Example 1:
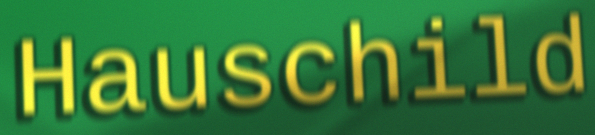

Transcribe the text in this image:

Hauschild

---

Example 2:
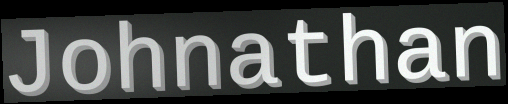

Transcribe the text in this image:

Johnathan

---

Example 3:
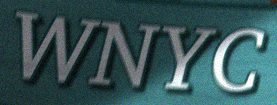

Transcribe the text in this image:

WNYC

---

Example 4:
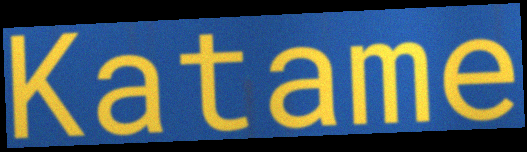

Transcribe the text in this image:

Katame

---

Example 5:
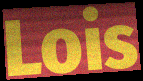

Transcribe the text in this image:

Lois